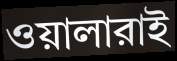
ওয়ালারাই